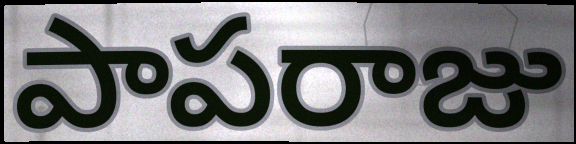
పాపరాజు